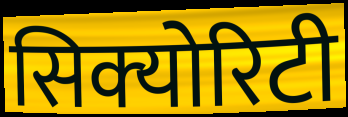
सिक्‍योरिटी